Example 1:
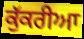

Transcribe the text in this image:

ਕੁੱਕਰੀਆ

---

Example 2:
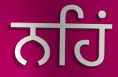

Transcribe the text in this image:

ਨਹਿਂ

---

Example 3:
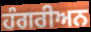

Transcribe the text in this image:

ਹੰਗਰੀਅਨ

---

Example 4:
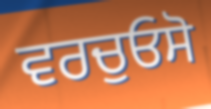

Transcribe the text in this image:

ਵਰਚੁਓਸੋ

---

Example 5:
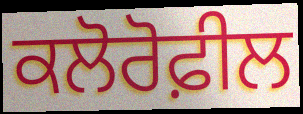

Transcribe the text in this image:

ਕਲੋਰੋਫ਼ੀਲ